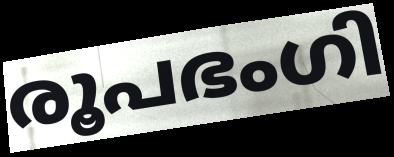
രൂപഭംഗി